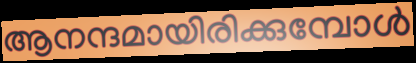
ആനന്ദമായിരിക്കുമ്പോൾ